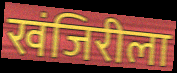
खंजिरीला